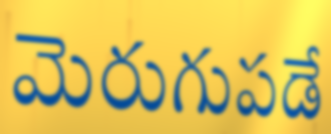
మెరుగుపడే